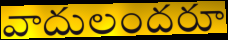
వాదులందరూ